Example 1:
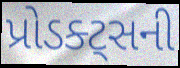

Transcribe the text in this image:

પ્રોડક્ટ્સની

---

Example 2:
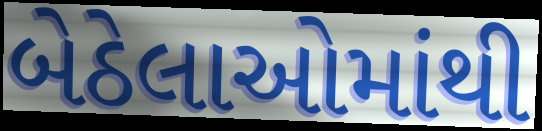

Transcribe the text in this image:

બેઠેલાઓમાંથી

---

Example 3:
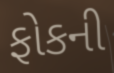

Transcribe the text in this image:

ફોકની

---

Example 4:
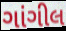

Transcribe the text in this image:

ગાંગીલ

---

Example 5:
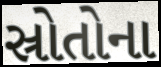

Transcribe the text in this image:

સ્રોતોના